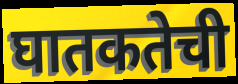
घातकतेची